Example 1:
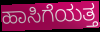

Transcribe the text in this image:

ಹಾಸಿಗೆಯತ್ತ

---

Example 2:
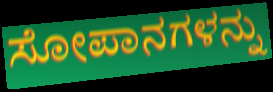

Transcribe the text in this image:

ಸೋಪಾನಗಳನ್ನು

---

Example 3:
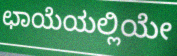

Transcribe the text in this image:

ಛಾಯೆಯಲ್ಲಿಯೇ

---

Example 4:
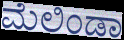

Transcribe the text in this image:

ಮೆಲಿಂಡಾ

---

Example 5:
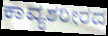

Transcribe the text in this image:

ಕಾವ್ಯಶರೀರದ